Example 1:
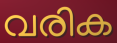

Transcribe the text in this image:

വരിക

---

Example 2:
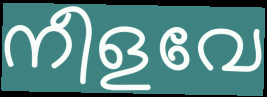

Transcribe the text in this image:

നീളവേ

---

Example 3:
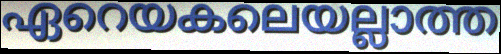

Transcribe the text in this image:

ഏറെയകലെയല്ലാത്ത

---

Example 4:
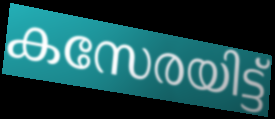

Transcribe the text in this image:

കസേരയിട്ട്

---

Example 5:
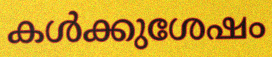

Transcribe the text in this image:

കൾക്കുശേഷം